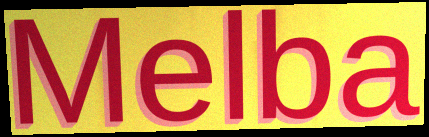
Melba